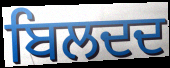
ਬਿਲਦਦ